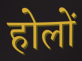
होलों